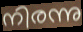
നിരന്നു